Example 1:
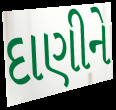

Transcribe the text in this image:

દાણીને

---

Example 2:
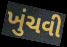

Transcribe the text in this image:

ખુંચવી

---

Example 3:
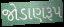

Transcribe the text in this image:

જોડાણરૂપ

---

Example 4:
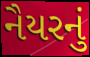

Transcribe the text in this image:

નૈયરનું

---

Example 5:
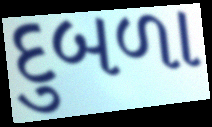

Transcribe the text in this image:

દુબળા